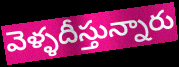
వెళ్ళదీస్తున్నారు